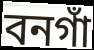
বনগাঁ